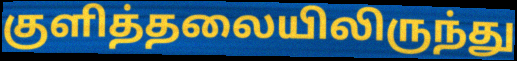
குளித்தலையிலிருந்து